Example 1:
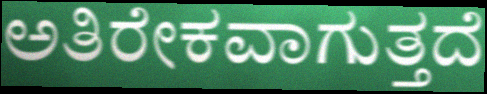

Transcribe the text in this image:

ಅತಿರೇಕವಾಗುತ್ತದೆ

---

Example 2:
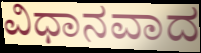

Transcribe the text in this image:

ವಿಧಾನವಾದ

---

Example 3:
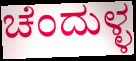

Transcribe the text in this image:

ಚೆಂದುಳ್ಳ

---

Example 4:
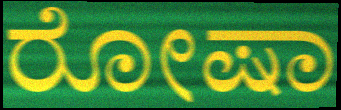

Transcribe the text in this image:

ರೋಷಾ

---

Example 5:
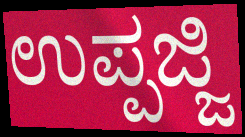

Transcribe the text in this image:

ಉಪ್ಪಜ್ಜಿ